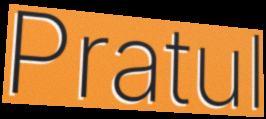
Pratul